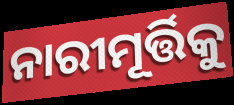
ନାରୀମୂର୍ତ୍ତିକୁ